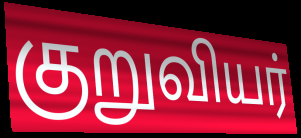
குறுவியர்